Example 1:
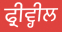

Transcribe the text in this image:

ਫ੍ਰੀਵ੍ਹੀਲ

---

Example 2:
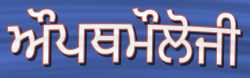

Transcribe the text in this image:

ਔਪਥਮੌਲੋਜੀ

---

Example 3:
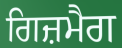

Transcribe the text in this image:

ਗਿਜ਼ਮੈਗ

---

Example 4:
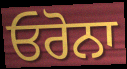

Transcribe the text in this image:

ਓਰੋਨਾ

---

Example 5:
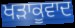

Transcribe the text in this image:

ਖੜਾਕੂਵਾਦ